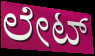
ಲೇಟ್